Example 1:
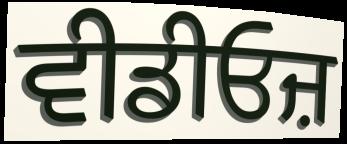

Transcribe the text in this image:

ਵੀਡੀਓਜ਼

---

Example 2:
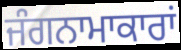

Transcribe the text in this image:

ਜੰਗਨਾਮਾਕਾਰਾਂ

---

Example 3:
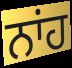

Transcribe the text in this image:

ਨਾਂਹ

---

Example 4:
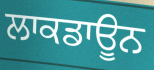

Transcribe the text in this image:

ਲਾਕਡਾਊਨ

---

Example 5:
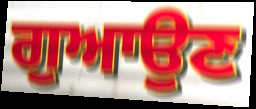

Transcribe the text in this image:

ਗੁਆਉਣ